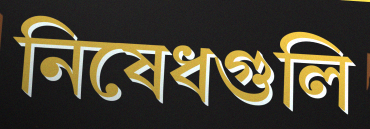
নিষেধগুলি